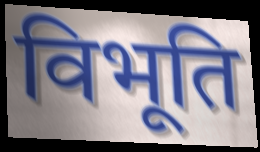
विभूति